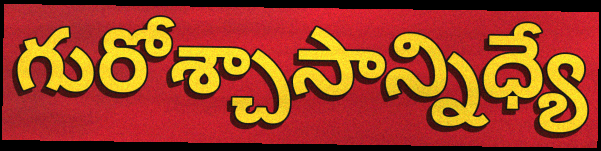
గురోశ్చాసాన్నిధ్యే